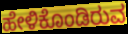
ಹೇಳಿಕೊಂಡಿರುವ